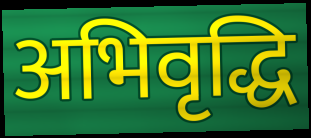
अभिवृद्धि